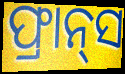
ଫ୍ରାନ୍‌ସ